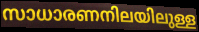
സാധാരണനിലയിലുള്ള